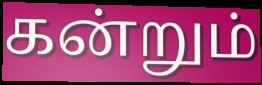
கன்றும்